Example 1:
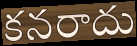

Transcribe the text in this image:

కనరాదు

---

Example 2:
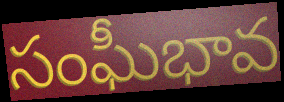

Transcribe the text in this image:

సంఘీభావ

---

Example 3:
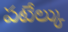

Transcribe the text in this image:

పటేల్కు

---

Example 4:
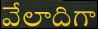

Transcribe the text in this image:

వేలాదిగా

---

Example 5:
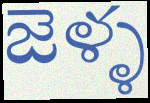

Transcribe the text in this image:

జెళ్ళ